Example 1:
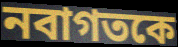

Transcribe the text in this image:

নবাগতকে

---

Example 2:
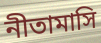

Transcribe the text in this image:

নীতামাসি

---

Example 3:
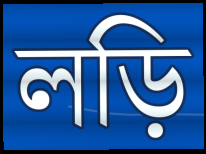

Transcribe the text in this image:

লড়ি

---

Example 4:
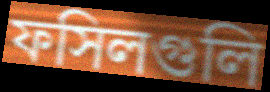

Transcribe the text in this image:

ফসিলগুলি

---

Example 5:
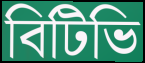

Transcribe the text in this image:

বিটিভি